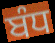
ਬੰਧ